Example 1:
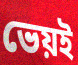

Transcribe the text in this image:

ভেয়ই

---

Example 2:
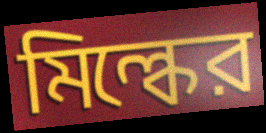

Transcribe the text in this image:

মিল্কের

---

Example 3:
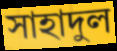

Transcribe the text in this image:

সাহাদুল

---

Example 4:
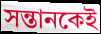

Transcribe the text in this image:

সন্তানকেই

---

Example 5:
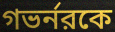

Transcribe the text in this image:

গভর্নরকে